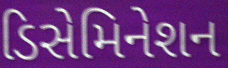
ડિસેમિનેશન